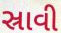
સ્રાવી